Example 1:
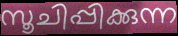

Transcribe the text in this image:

സൂചിപ്പിക്കുന്ന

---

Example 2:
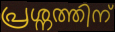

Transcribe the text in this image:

പ്രശ്നത്തിന്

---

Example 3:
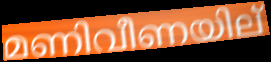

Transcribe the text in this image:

മണിവീണയില്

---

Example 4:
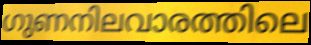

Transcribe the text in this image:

ഗുണനിലവാരത്തിലെ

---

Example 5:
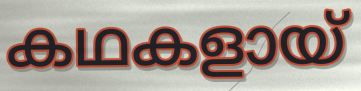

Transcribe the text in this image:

കഥകളായ്